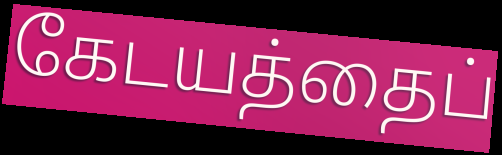
கேடயத்தைப்